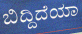
ಬಿದ್ದಿದೆಯಾ